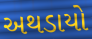
અથડાયો